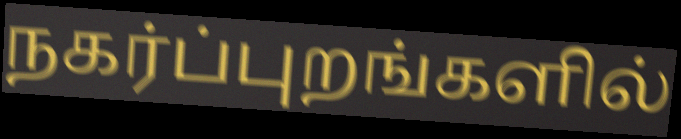
நகர்ப்புறங்களில்